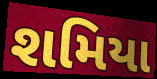
શમિયા